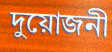
দুয়োজনী